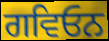
ਗਵਿਓਨ